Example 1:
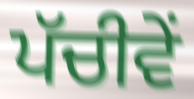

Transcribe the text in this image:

ਪੱਚੀਵੇਂ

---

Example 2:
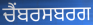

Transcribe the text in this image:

ਚੈਂਬਰਸਬਰਗ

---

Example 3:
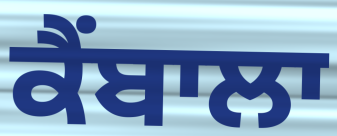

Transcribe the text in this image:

ਕੈਂਬਾਲਾ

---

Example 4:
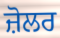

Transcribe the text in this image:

ਜ਼ੋਲਰ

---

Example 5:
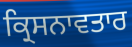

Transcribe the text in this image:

ਕ੍ਰਿਸਨਾਵਤਾਰ